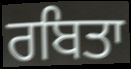
ਰਬਿਤਾ